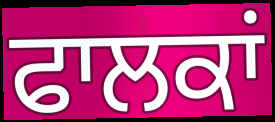
ਫਾਲਕਾਂ